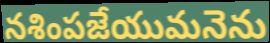
నశింపజేయుమనెను